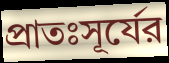
প্রাতঃসূর্যের